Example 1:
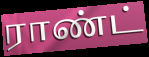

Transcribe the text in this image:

ராண்ட்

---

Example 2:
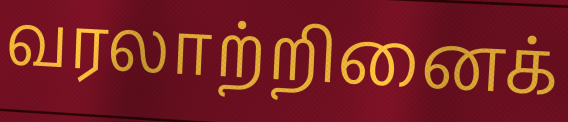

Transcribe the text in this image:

வரலாற்றினைக்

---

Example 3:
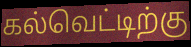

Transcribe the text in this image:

கல்வெட்டிற்கு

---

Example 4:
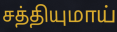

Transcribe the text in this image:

சத்தியுமாய்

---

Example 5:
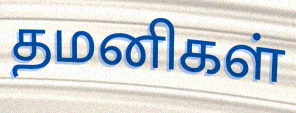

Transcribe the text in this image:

தமனிகள்